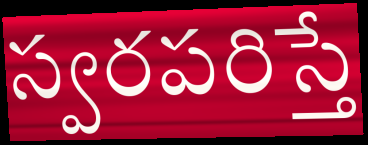
స్వరపరిస్తే